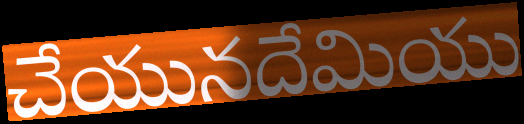
చేయునదేమియు